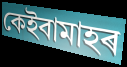
কেইবামাহৰ